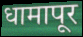
धामापूर